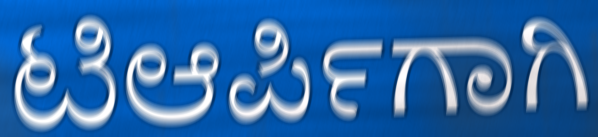
ಟಿಆರ್ಪಿಗಾಗಿ